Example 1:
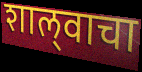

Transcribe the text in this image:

शाल्वाचा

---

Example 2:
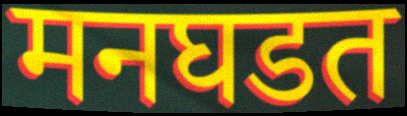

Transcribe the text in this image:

मनघडत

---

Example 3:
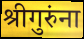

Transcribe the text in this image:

श्रीगुरुंना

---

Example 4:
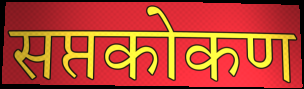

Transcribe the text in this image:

सप्तकोकण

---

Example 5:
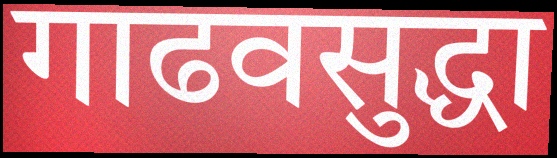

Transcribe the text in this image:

गाढवसुद्धा